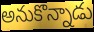
అనుకొన్నాడు